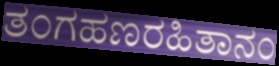
ತಂಗಹಣರಹಿತಾನಂ